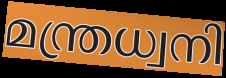
മന്ത്രധ്വനി